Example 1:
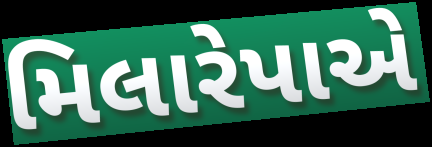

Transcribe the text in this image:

મિલારેપાએ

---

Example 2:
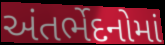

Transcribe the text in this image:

અંતર્ભેદનોમાં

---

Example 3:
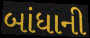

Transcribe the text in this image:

બાંધાની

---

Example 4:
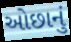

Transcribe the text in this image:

ઓછાનું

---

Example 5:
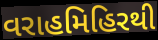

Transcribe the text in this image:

વરાહમિહિરથી